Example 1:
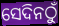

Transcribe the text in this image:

ସେଦିନଠୁଁ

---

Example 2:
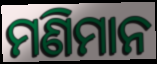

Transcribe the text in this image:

ମଣିମାନ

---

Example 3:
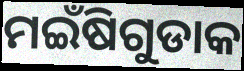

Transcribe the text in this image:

ମଇଁଷିଗୁଡାକ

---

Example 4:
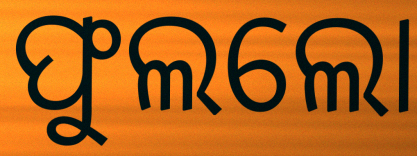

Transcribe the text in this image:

ଫୁଲଲୋ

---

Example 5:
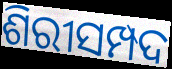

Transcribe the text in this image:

ଶିରୀସମ୍ପଦ